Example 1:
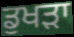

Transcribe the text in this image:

ਡੁਖੜਾ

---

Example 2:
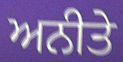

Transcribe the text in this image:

ਅਨੀਤੇ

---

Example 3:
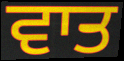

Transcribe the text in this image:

ਵਾਤ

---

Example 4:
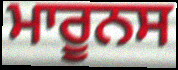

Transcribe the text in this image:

ਮਾਰੂਨਸ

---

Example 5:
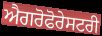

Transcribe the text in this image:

ਐਗਰੋਫੋਰੇਸਟਰੀ